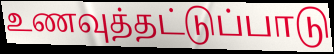
உணவுத்தட்டுப்பாடு